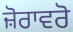
ਜ਼ੋਰਾਵਰੋ